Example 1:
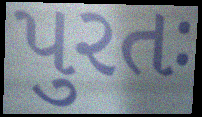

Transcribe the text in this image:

પુરતઃ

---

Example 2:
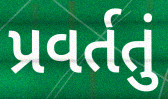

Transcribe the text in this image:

પ્રવર્તતું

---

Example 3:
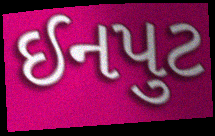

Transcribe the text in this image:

ઈનપુટ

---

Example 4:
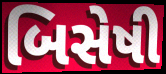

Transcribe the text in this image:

બિસેષી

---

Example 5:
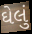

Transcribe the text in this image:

ઘેલું